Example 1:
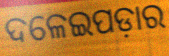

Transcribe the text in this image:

ଦଳେଇପଡ଼ାର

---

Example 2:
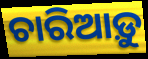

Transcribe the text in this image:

ଚାରିଆଡ଼ୁ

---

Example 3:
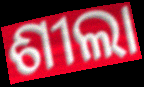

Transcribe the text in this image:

ଶୀଲା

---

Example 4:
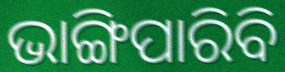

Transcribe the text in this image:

ଭାଙ୍ଗିପାରିବି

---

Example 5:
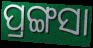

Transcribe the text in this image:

ପ୍ରଙ୍ଗସା